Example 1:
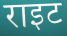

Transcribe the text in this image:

राइट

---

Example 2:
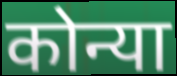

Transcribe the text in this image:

कोन्या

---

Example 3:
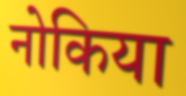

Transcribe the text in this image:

नोकिया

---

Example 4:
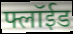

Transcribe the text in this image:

फ्लॉईड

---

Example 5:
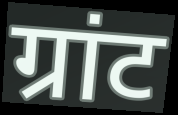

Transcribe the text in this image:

ग्रांट